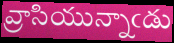
వ్రాసియున్నాఁడు